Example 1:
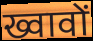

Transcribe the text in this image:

ख्वावों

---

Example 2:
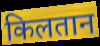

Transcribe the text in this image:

किलतान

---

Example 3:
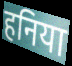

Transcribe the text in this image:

हनिया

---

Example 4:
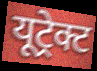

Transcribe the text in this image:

यूट्रेक्ट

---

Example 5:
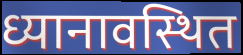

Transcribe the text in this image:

ध्यानावस्थित